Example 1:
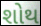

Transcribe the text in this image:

શોથ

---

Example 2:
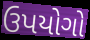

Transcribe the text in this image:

ઉપયોગો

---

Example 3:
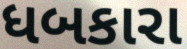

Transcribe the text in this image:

ધબકારા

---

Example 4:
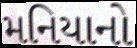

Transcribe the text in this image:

મનિયાનો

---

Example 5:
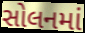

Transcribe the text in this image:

સોલનમાં